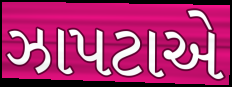
ઝાપટાએ